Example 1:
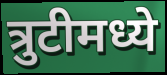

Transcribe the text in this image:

त्रुटीमध्ये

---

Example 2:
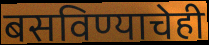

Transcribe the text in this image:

बसविण्याचेही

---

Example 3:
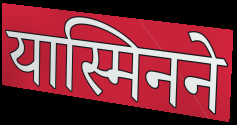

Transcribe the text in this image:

यास्मिनने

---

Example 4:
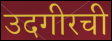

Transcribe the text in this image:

उदगीरची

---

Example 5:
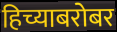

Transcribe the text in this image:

हिच्याबरोबर